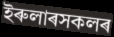
ইৰুলাৰসকলৰ